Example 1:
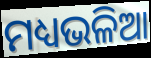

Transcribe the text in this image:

ମଧ୍ୟଭଳିଆ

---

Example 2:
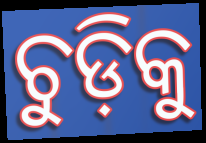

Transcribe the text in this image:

ଚୁଡ଼ିକୁ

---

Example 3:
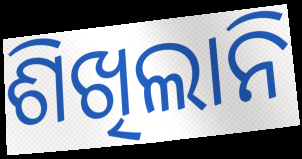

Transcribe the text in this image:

ଶିଖିଲାନି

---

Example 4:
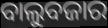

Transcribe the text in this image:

ବାଲୁବଜାର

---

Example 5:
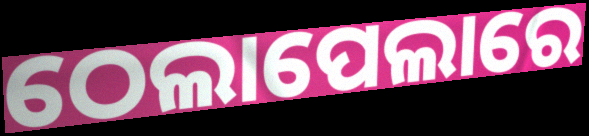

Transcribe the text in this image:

ଠେଲାପେଲାରେ